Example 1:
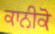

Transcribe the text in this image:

ਕਾਨੀਕੋ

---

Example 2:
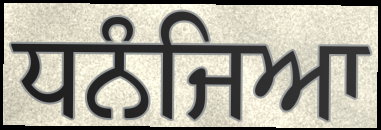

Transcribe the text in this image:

ਧਨੰਜਿਆ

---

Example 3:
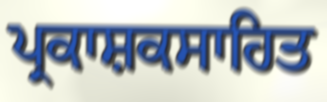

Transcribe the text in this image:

ਪ੍ਰਕਾਸ਼ਕਸਾਹਿਤ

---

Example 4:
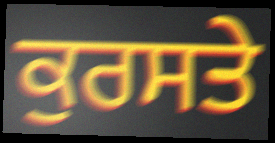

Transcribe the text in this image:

ਕੁਰਸਤੇ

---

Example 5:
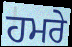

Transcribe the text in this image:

ਹਮਰੇ